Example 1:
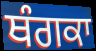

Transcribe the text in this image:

ਥੰਗਕਾ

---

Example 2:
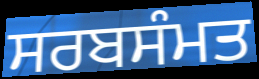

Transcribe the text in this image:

ਸਰਬਸੰਮਤ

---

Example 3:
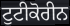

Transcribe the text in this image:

ਟੁਟੀਕੋਰੀਨ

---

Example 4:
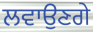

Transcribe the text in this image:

ਲਵਾਉਣਗੇ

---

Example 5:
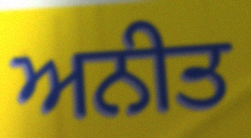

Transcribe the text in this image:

ਅਨੀਤ